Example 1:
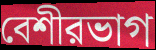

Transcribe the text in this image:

বেশীরভাগ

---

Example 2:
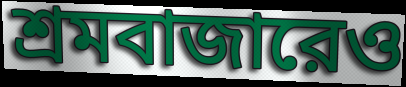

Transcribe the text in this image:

শ্রমবাজারেও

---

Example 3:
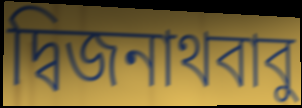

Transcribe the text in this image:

দ্বিজনাথবাবু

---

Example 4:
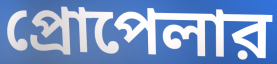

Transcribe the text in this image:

প্রোপেলার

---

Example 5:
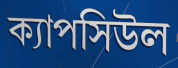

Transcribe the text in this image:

ক্যাপসিউল